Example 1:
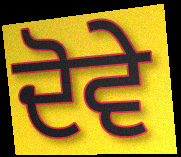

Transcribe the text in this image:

ਦੋਵੇ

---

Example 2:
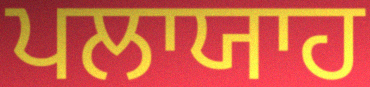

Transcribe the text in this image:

ਪਲਾਯਾਹ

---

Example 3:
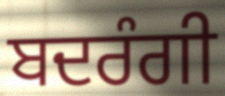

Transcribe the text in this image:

ਬਦਰੰਗੀ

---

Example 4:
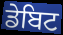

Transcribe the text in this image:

ਡੇਬਿਟ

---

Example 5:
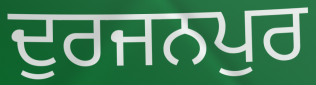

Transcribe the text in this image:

ਦੁਰਜਨਪੁਰ